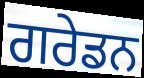
ਗਰੇਡਨ